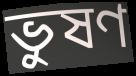
ভুষণ